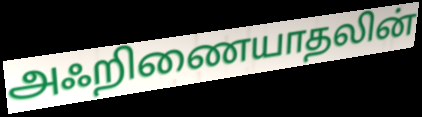
அஃறிணையாதலின்